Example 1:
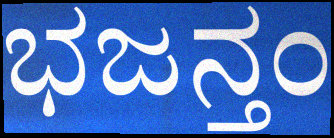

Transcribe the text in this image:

ಭಜನ್ತಂ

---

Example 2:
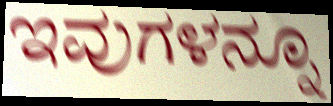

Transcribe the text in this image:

ಇವುಗಳನ್ನೂ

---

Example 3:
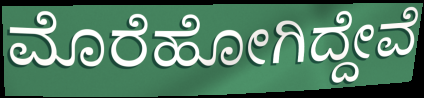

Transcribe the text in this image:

ಮೊರೆಹೋಗಿದ್ದೇವೆ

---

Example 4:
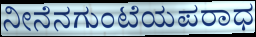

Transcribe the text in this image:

ನೀನೆನಗುಂಟೆಯಪರಾಧ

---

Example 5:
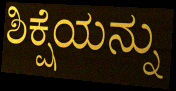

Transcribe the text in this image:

ಶಿಕ್ಷೆಯನ್ನು